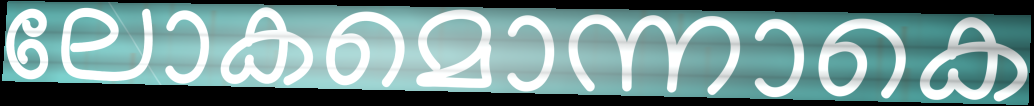
ലോകമൊന്നാകെ